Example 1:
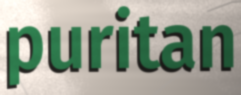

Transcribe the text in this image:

puritan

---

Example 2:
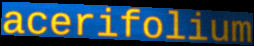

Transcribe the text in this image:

acerifolium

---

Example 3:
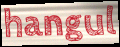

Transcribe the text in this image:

hangul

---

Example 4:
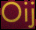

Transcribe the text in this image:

Oij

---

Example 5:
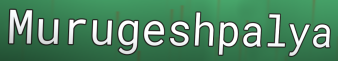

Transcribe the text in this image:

Murugeshpalya